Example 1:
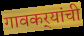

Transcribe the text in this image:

गावकर्यांची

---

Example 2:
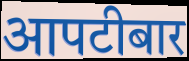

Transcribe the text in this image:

आपटीबार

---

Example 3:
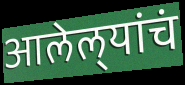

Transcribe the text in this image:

आलेल्यांचं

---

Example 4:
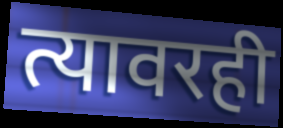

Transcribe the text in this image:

त्यावरही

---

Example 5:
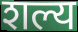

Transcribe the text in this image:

शल्‍य